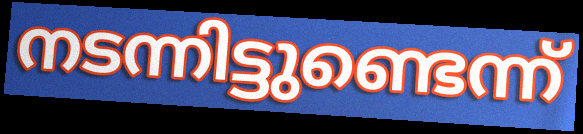
നടന്നിട്ടുണ്ടെന്ന്